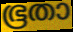
ഭൂതാ